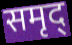
समृद्